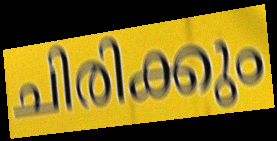
ചിരിക്കും